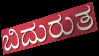
ಬಿದುರುತ